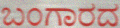
ಬಂಗಾರದ